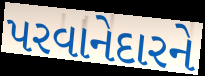
પરવાનેદારને